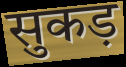
सुकड़